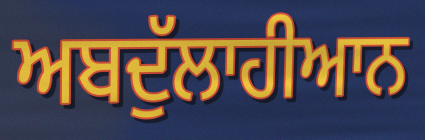
ਅਬਦੁੱਲਾਹੀਆਨ